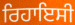
ਰਿਹਾਇਸੀ